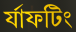
র্যাফটিং